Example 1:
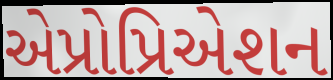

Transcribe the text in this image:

એપ્રોપ્રિએશન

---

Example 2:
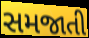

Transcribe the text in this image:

સમજાતી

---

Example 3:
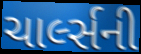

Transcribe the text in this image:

ચાર્લ્સની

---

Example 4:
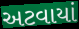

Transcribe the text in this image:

અટવાયાં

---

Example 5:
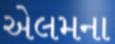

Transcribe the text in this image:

એલમના